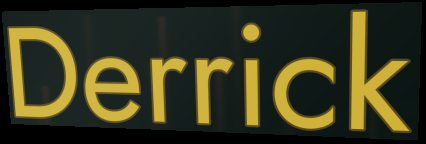
Derrick